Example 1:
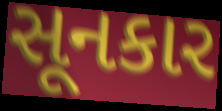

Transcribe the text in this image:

સૂનકાર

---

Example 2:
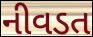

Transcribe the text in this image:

નીવડત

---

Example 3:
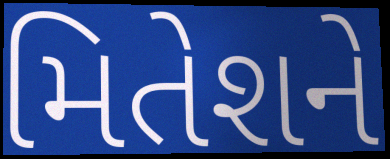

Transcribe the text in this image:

મિતેશને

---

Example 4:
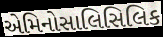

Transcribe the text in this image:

એમિનોસાલિસિલિક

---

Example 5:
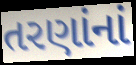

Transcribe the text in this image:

તરણાંનાં